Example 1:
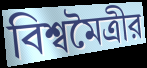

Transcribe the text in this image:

বিশ্বমৈত্রীর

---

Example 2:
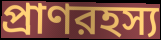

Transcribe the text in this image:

প্রাণরহস্য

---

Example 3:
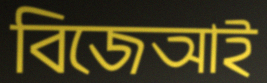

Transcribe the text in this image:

বিজেআই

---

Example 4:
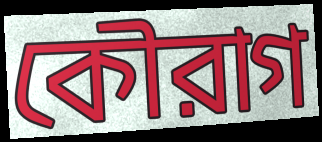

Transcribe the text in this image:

কৌরাগ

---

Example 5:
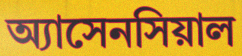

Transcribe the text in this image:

অ্যাসেনসিয়াল